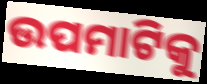
ଉପମାଟିକୁ